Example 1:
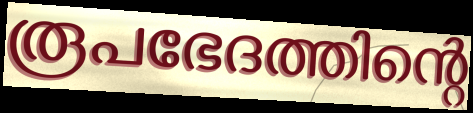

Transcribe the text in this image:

രൂപഭേദത്തിന്റെ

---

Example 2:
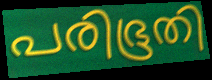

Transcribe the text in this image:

പരിഭൂതി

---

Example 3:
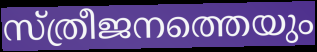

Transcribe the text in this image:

സ്ത്രീജനത്തെയും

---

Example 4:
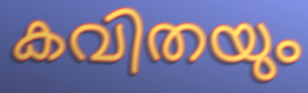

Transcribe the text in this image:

കവിതയും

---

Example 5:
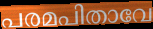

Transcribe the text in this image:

പരമപിതാവേ